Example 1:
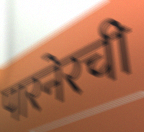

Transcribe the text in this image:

पारनेरची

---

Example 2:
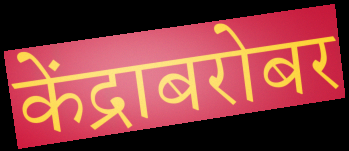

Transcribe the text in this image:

केंद्राबरोबर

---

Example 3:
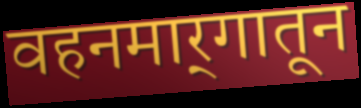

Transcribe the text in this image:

वहनमार्गातून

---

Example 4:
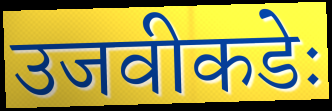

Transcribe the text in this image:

उजवीकडेः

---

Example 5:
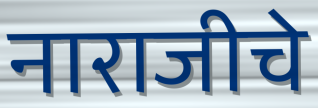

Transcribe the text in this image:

नाराजीचे